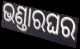
ଭଣ୍ଡାରଘର